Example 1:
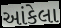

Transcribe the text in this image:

આંકેલા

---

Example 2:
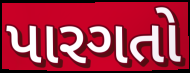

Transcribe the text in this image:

પારગતો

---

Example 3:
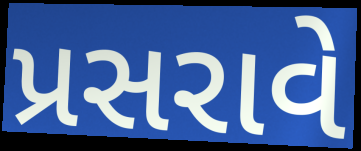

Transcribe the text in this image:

પ્રસરાવે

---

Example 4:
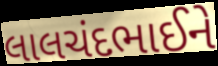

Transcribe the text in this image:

લાલચંદભાઈને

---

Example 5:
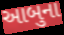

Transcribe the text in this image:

આબુના